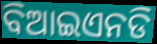
ବିଆଇଏନଡି